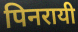
पिनरायी